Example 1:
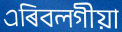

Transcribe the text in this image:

এৰিবলগীয়া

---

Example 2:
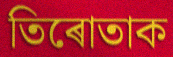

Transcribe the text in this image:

তিৰোতাক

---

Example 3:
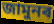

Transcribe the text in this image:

জামুনৰ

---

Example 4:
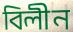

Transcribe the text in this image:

বিলীন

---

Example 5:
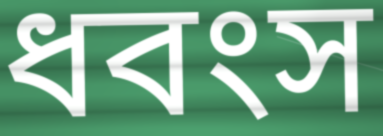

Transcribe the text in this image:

ধবংস